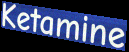
Ketamine